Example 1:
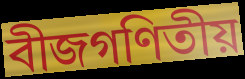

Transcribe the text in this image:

বীজগণিতীয়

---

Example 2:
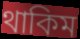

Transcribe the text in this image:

থাকিম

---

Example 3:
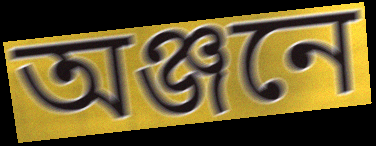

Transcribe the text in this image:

অঞ্জনে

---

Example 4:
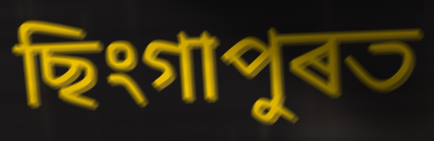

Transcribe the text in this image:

ছিংগাপুৰত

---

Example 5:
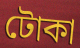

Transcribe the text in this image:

টোকা